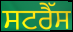
ਸਟਰੈੱਸ